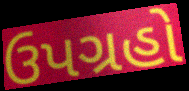
ઉપગ્રહો